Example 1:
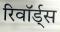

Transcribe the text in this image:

रिवॉर्ड्स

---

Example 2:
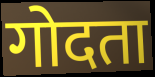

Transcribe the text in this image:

गोदता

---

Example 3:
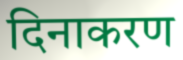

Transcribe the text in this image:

दिनाकरण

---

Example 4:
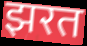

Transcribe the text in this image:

झरत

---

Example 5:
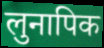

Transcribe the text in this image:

लुनापिक